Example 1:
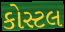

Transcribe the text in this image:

કોસ્ટલ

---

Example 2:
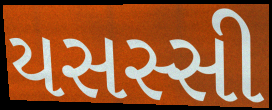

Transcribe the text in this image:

યસસ્સી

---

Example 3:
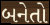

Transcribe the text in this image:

બનેતો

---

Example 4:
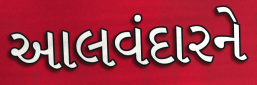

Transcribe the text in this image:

આલવંદારને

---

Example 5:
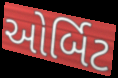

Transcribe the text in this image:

ઓર્બિટ